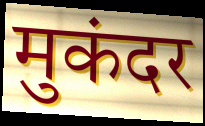
मुकंदर